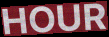
HOUR